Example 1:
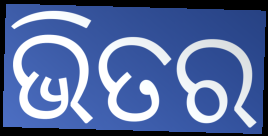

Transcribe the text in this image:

ଭିତର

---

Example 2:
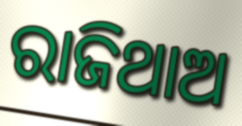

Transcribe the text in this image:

ରାଜିଥାଅ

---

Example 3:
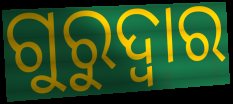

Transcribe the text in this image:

ଗୁରୁଦ୍ଵାର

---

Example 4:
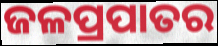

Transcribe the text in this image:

ଜଳପ୍ରପାତର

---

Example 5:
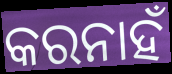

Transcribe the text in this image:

କରନାହଁ